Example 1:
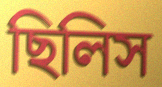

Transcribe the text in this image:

ছিলিস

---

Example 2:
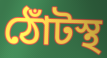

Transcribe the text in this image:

ঠোঁটস্থ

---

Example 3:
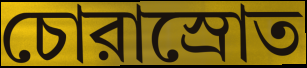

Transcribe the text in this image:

চোরাস্রোত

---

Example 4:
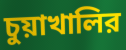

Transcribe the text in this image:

চুয়াখালির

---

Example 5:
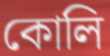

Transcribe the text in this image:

কোলি